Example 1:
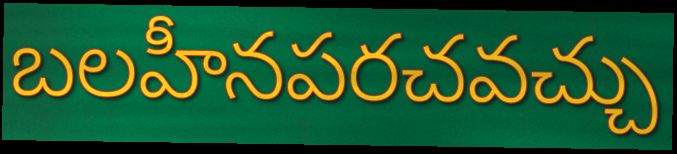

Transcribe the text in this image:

బలహీనపరచవచ్చు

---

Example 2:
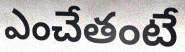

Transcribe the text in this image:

ఎంచేతంటే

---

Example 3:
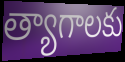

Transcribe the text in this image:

త్యాగాలకు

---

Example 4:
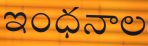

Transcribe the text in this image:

ఇంధనాల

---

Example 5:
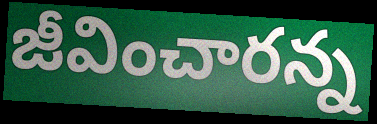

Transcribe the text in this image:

జీవించారన్న